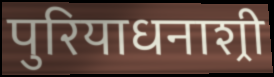
पुरियाधनाश्री